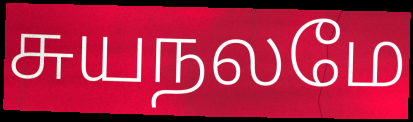
சுயநலமே